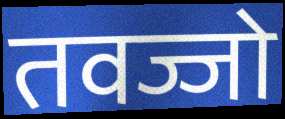
तवज्जो